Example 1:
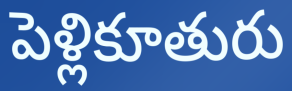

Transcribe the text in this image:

పెళ్లికూతురు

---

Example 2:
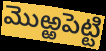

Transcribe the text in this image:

మొఱ్ఱపెట్టి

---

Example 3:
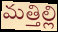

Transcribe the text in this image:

మత్తిల్లి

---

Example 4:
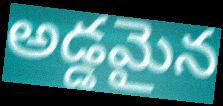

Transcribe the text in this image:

అడ్డమైన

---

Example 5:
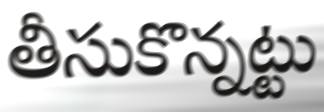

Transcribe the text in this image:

తీసుకొన్నట్టు